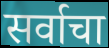
सर्वाचा